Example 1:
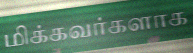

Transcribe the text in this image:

மிக்கவர்களாக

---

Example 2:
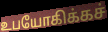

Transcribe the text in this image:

உபயோகிக்கச்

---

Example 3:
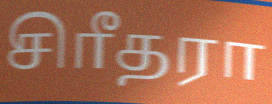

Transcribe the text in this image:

சிரீதரா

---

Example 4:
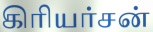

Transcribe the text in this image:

கிரியர்சன்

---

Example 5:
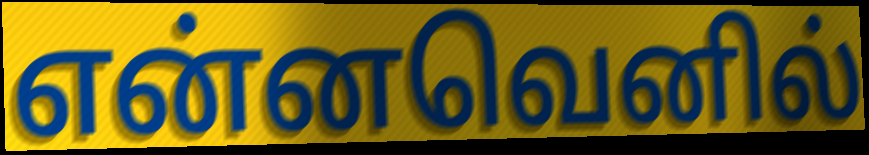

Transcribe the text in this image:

என்னவெனில்